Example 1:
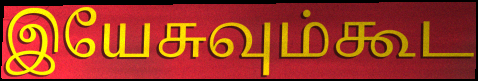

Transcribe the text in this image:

இயேசுவும்கூட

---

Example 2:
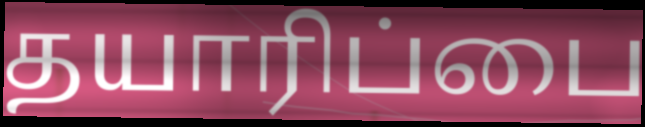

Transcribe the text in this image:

தயாரிப்பை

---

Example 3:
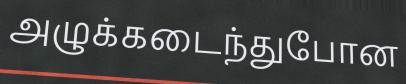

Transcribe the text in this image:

அழுக்கடைந்துபோன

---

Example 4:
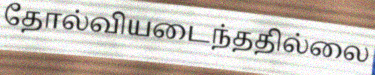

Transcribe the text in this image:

தோல்வியடைந்ததில்லை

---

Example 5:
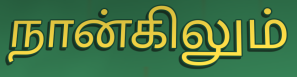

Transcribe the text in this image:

நான்கிலும்